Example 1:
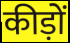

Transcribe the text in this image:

कीड़ों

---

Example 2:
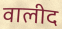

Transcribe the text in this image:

वालीद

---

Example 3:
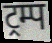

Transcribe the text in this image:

ट्रम्‍प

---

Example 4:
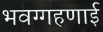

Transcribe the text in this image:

भवग्गहणाई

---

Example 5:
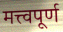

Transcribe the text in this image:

मत्त्वपूर्ण